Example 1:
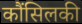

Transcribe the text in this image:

कौंसिलकी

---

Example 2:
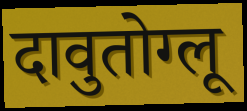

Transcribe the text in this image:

दावुतोग्लू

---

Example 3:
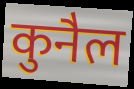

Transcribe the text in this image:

कुनैल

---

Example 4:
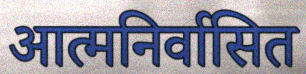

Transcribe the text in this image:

आत्मनिर्वासित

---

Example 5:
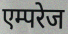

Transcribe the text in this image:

एम्परेज